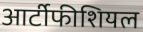
आर्टीफीशियल